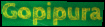
Gopipura